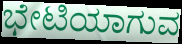
ಭೇಟಿಯಾಗುವ